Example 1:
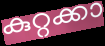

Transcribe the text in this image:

കുറ്റക്കാ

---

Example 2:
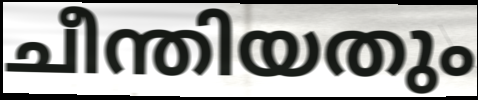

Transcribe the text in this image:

ചീന്തിയതും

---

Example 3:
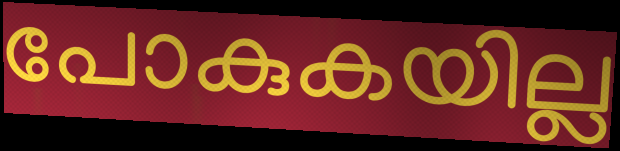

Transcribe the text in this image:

പോകുകയില്ല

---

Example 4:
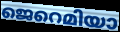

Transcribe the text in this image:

ജെറെമിയാ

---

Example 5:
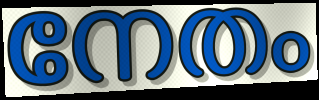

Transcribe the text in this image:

നേതം